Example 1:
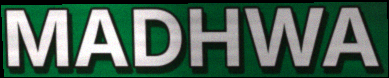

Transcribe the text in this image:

MADHWA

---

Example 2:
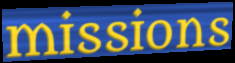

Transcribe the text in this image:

missions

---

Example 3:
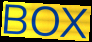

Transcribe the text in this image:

BOX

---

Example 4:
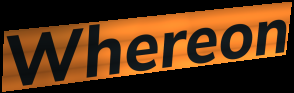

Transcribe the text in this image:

Whereon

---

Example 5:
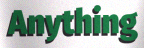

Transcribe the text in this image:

Anything